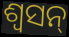
ଶ୍ୱସନ୍